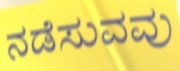
ನಡೆಸುವವು